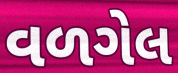
વળગેલ